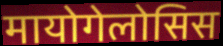
मायोगेलोसिस